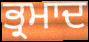
ਭ੍ਰਮਾਦ